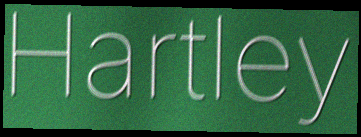
Hartley